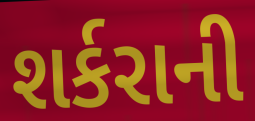
શર્કરાની